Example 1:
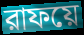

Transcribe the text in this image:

রাফয়ে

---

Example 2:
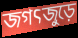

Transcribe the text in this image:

জগৎজুড়ে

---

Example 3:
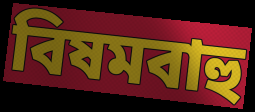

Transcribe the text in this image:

বিষমবাহু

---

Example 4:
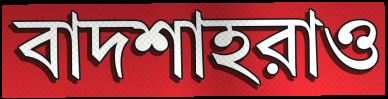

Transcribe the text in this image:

বাদশাহরাও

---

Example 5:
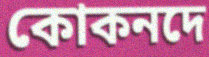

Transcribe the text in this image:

কোকনদে